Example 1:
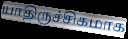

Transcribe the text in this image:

யாதிருச்சிகமாக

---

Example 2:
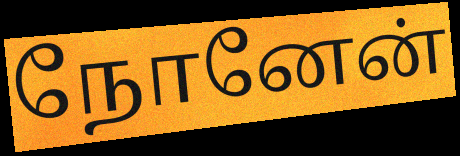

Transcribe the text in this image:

நோனேன்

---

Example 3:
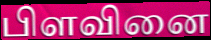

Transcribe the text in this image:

பிளவினை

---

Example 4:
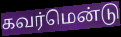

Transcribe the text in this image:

கவர்மென்டு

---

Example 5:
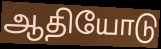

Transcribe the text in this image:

ஆதியோடு